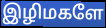
இழிமகளே